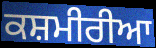
ਕਸ਼ਮੀਰੀਆ